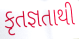
કૃતજ્ઞતાથી